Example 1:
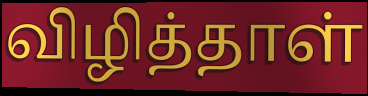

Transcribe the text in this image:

விழித்தாள்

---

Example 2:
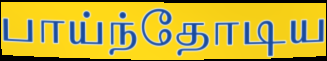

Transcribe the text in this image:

பாய்ந்தோடிய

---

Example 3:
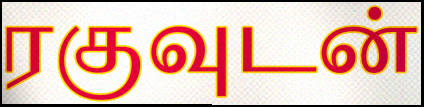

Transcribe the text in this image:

ரகுவுடன்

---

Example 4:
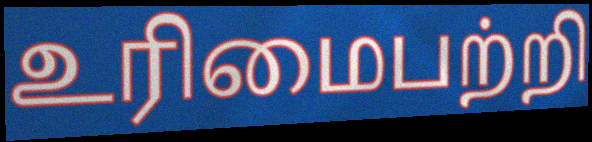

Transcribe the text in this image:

உரிமைபற்றி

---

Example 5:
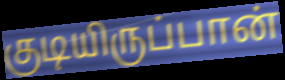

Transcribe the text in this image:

குடியிருப்பான்